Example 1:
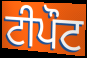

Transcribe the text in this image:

ਟੀਪੌਟ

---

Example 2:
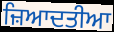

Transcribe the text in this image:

ਜ਼ਿਆਦਤੀਆ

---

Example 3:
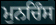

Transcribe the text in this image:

ਮੁਨਚਿੰਸ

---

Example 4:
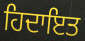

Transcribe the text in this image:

ਹਿਦਾਇਤ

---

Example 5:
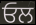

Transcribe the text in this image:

ਓਲ